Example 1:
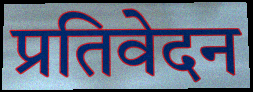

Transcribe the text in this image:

प्रतिवेदन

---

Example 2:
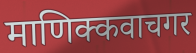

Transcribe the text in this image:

माणिक्कवाचगर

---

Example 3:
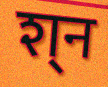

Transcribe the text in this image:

श्न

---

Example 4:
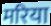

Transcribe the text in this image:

मरिया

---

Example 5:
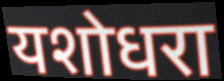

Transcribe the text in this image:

यशोधरा